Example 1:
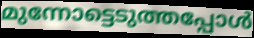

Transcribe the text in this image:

മുന്നോട്ടെടുത്തപ്പോൾ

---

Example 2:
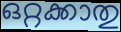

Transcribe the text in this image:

ഒറ്റക്കാതു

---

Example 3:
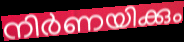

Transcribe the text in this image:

നിർണയിക്കും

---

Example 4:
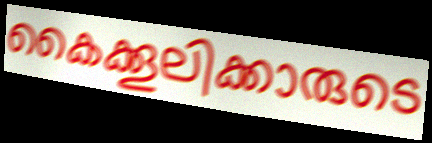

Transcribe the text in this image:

കൈക്കൂലിക്കാരുടെ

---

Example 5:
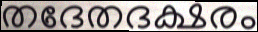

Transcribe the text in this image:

തദേതദക്ഷരം